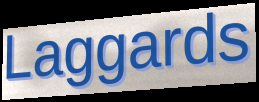
Laggards